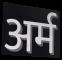
अर्म